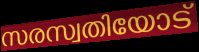
സരസ്വതിയോട്